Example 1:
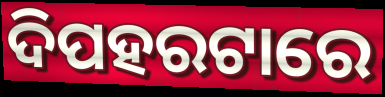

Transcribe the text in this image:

ଦିପହରଟାରେ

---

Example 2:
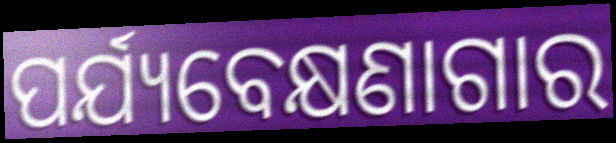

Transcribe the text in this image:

ପର୍ଯ୍ୟବେକ୍ଷଣାଗାର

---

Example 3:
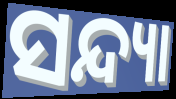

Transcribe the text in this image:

ସନ୍ଦ୍ୟା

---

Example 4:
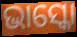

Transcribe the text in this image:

ଭାସ୍କୋ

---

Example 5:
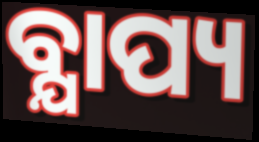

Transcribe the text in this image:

ବ୍ଯାପ୍ୟ